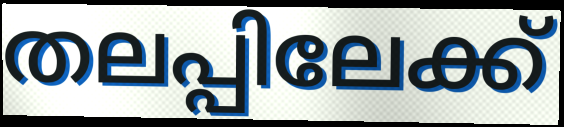
തലപ്പിലേക്ക്